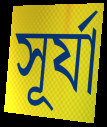
সূর্যা